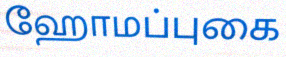
ஹோமப்புகை